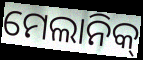
ମେଲାନିକ୍